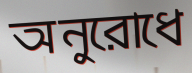
অনুরোধে